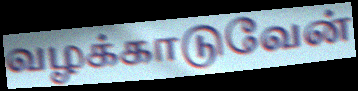
வழக்காடுவேன்